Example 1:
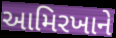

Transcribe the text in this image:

આમિરખાને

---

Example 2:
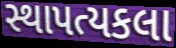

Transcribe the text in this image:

સ્થાપત્યકલા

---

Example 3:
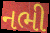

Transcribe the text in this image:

નભી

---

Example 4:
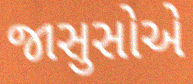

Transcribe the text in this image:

જાસુસોએ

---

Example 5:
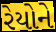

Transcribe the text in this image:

રેયોને